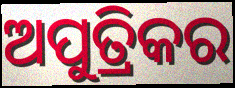
ଅପୁତ୍ରିକର